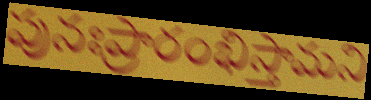
పునఃప్రారంభిస్తామని